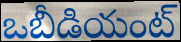
ఒబీడియంట్